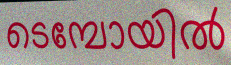
ടെമ്പോയിൽ